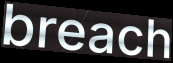
breach